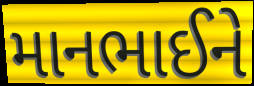
માનભાઈને